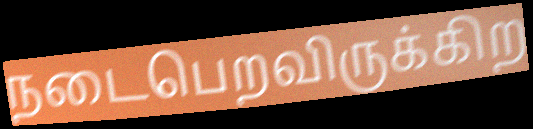
நடைபெறவிருக்கிற